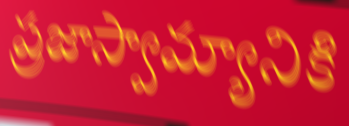
ప్రజాస్వామ్యానికి